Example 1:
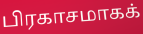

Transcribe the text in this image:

பிரகாசமாகக்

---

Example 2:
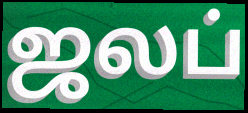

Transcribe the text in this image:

ஜலப்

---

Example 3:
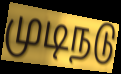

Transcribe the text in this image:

முடிநடு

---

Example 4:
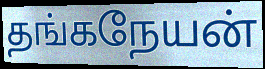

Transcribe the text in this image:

தங்கநேயன்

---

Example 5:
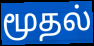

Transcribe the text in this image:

மூதல்